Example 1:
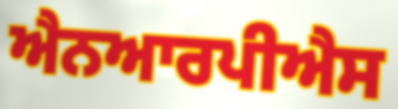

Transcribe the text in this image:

ਐਨਆਰਪੀਐਸ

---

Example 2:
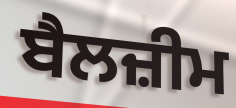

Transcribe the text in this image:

ਬੈਲਜ਼ੀਮ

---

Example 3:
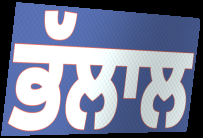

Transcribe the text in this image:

ਭੱਲਾਲ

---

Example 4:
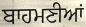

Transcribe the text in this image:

ਬਾਹਮਣੀਆਂ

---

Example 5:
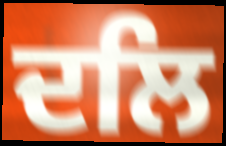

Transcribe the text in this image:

ਦਲਿ